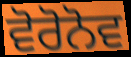
ਵੋਰੋਨੋਵ